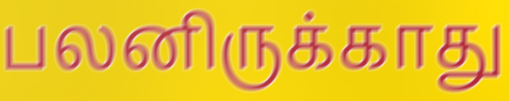
பலனிருக்காது